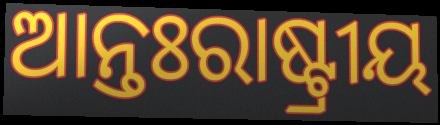
ଆନ୍ତଃରାଷ୍ଟ୍ରୀୟ